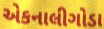
એકનાલીગોડા